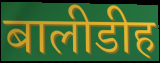
बालीडीह